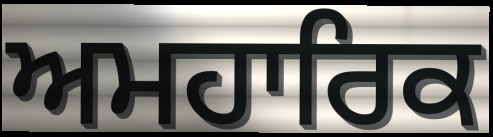
ਅਮਹਾਰਿਕ